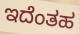
ಇದೆಂತಹ